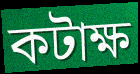
কটাক্ষ